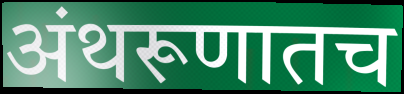
अंथरूणातच